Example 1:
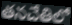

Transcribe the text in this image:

తనచేతిలో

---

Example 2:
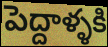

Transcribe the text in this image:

పెద్దాళ్ళకి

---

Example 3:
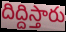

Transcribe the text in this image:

దిద్దిస్తారు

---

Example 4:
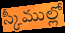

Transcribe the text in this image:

స్కీముల్లో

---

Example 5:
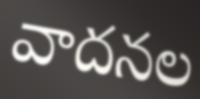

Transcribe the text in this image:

వాదనల